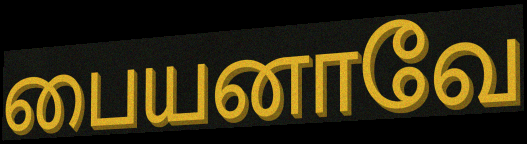
பையனாவே